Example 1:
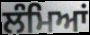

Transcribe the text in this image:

ਲੰਮਿਆਂ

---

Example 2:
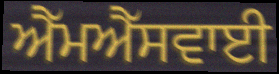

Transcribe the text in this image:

ਐੱਮਐੱਸਵਾਈ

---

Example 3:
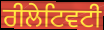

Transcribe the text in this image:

ਰੀਲੇਟਿਵਟੀ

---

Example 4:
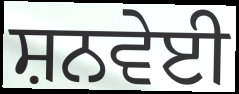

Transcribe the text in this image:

ਸ਼ਨਵੇਈ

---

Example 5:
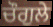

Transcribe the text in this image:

ਚੌਗੁਲੇ